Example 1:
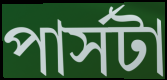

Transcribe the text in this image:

পার্সটা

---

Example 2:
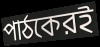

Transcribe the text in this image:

পাঠকেরই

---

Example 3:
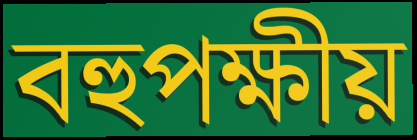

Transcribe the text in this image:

বহুপক্ষীয়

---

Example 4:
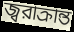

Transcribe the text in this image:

জ্বরাক্রান্ত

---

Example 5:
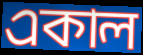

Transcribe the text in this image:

একাল